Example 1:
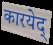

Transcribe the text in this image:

कारयेद्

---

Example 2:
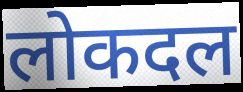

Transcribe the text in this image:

लोकदल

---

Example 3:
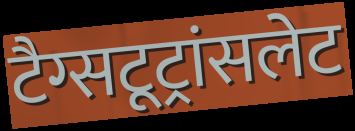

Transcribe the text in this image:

टैग्सटूट्रांसलेट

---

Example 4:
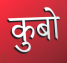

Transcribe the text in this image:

कुबो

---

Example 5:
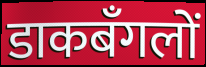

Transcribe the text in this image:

डाकबँगलों